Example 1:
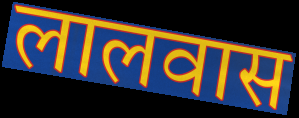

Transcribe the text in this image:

लालवास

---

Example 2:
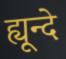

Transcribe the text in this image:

ह्यून्दे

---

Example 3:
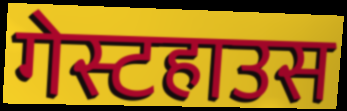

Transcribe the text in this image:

गेस्टहाउस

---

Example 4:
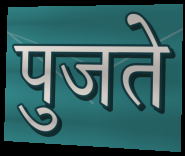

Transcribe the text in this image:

पुजते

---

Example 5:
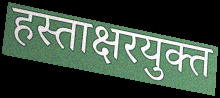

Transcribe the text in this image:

हस्ताक्षरयुक्त